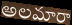
అలమారా